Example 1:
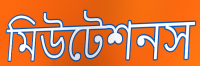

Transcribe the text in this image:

মিউটেশনস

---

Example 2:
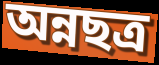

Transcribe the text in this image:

অন্নছত্র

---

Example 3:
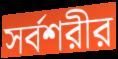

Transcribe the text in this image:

সর্বশরীর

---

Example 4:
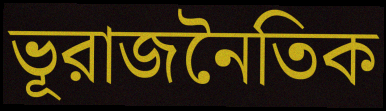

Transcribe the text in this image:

ভূরাজনৈতিক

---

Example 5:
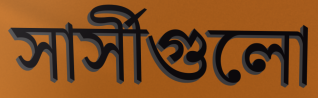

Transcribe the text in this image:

সার্সীগুলো